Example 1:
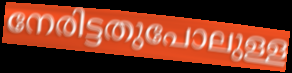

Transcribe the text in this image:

നേരിട്ടതുപോലുള്ള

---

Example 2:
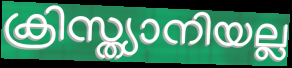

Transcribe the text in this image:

ക്രിസ്ത്യാനിയല്ല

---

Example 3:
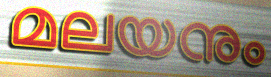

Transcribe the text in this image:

മലയനും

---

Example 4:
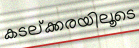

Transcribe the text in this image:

കടല്ക്കരയിലൂടെ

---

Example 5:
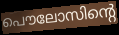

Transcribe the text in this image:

പൌലോസിന്റെ